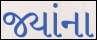
જ્યાંના